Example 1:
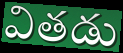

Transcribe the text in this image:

వితడు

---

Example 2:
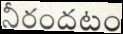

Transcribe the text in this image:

నీరందటం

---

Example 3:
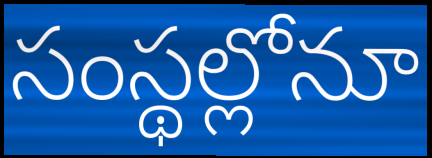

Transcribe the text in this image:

సంస్థల్లోనూ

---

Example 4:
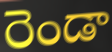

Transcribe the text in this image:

రెండా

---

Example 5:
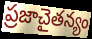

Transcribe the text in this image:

ప్రజాచైతన్యం